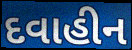
દવાહીન